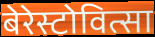
बेरेस्टोवित्सा